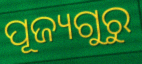
ପୂଜ୍ୟଗୁରୁ